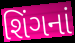
શિંગનાં